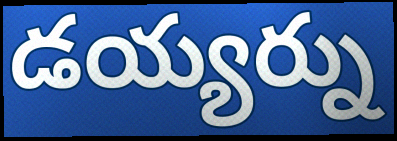
డయ్యర్ను